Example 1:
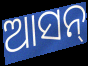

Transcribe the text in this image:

ଆସନ୍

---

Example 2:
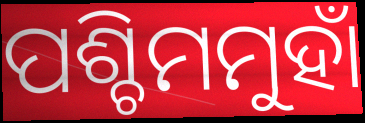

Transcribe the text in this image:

ପଶ୍ଚିମମୁହାଁ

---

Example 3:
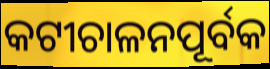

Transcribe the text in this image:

କଟୀଚାଳନପୂର୍ବକ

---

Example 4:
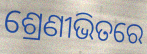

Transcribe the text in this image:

ଶ୍ରେଣୀଭିତରେ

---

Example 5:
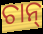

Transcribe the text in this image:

ଚାନ୍